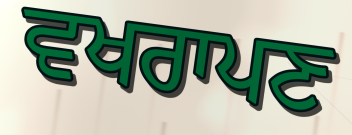
ਵਖਰਾਪਣ